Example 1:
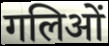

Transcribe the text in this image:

गलिओं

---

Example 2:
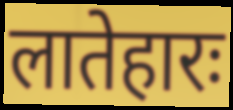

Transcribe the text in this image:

लातेहारः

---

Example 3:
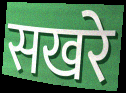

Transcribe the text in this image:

सखरे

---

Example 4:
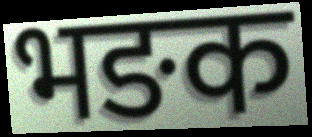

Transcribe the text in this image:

भङक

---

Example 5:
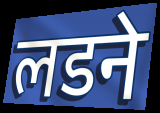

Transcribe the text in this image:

लडने